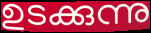
ഉടക്കുന്നു